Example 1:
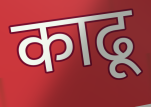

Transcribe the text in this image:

काढू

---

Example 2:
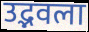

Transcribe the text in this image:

उद्भवला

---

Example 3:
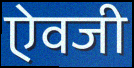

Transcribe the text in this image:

ऐवजी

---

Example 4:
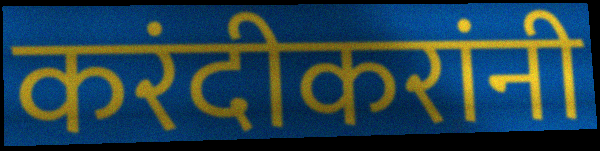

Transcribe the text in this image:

करंदीकरांनी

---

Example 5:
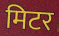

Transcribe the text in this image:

मिटर